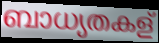
ബാധ്യതകള്